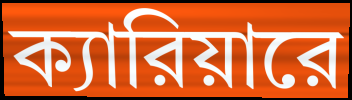
ক্যারিয়ারে